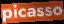
picasso